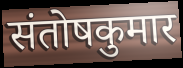
संतोषकुमार